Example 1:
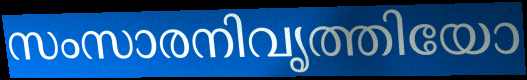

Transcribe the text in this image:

സംസാരനിവൃത്തിയോ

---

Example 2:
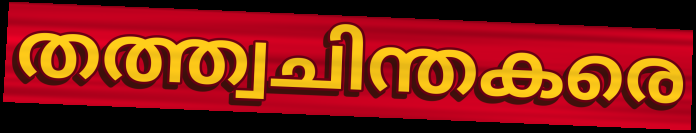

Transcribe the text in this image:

തത്ത്വചിന്തകരെ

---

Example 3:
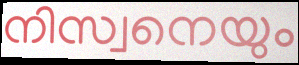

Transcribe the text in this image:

നിസ്വനെയും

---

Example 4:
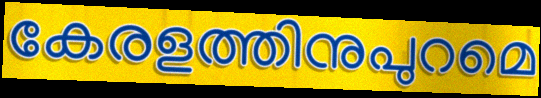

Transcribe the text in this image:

കേരളത്തിനുപുറമെ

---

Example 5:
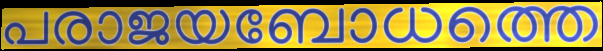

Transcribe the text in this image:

പരാജയബോധത്തെ